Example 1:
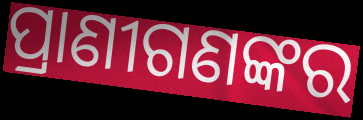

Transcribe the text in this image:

ପ୍ରାଣୀଗଣଙ୍କର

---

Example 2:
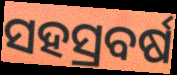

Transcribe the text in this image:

ସହସ୍ରବର୍ଷ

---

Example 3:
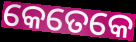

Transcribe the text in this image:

କେତେକେ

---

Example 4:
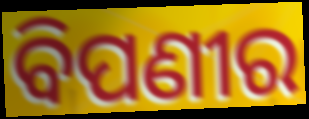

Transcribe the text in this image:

ବିପଣୀର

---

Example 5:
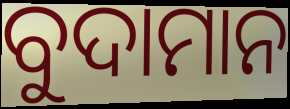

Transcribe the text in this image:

ବୁଦାମାନ